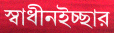
স্বাধীনইচ্ছার